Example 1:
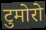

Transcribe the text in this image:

टुमोरो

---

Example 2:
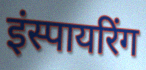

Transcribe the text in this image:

इंस्पायरिंग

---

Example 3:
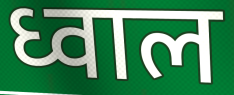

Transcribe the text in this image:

ध्वाल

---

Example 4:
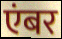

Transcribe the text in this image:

एंबर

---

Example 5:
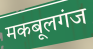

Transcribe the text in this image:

मकबूलगंज